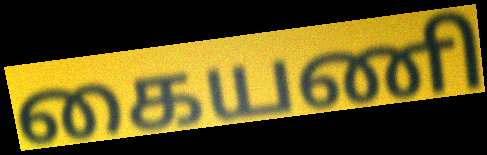
கையணி